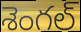
శెంగల్